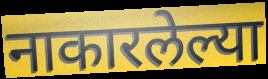
नाकारलेल्या